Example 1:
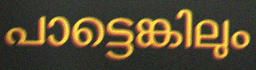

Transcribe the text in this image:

പാട്ടെങ്കിലും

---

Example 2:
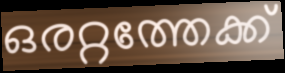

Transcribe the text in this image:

ഒരറ്റത്തേക്ക്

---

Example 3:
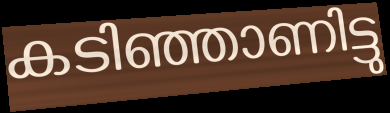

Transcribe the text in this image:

കടിഞ്ഞാണിട്ടു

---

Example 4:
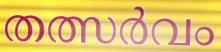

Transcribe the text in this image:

തത്സർവം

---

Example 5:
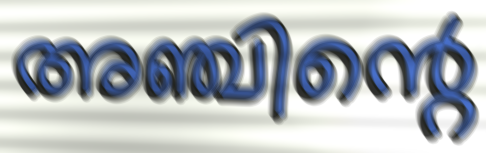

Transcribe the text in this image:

അഞ്ചിന്റെ